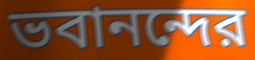
ভবানন্দের